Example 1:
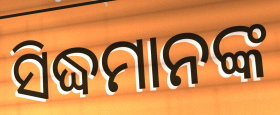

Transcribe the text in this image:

ସିଦ୍ଧମାନଙ୍କ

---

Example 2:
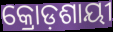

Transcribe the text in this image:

କ୍ରୋଡ଼ଶାୟୀ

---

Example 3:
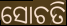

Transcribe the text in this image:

ସୋଚତି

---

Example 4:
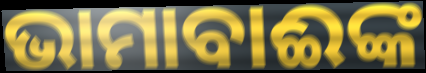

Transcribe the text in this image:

ଭାମାବାଈଙ୍କ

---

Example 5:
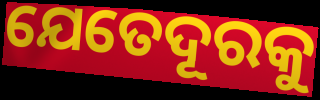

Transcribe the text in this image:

ଯେତେଦୂରକୁ